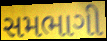
સમભાગી